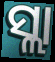
ସ୍ଲା